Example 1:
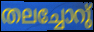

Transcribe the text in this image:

തലച്ചോറു്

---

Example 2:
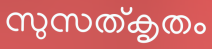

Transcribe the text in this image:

സുസത്കൃതം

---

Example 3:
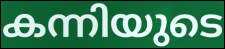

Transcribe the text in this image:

കന്നിയുടെ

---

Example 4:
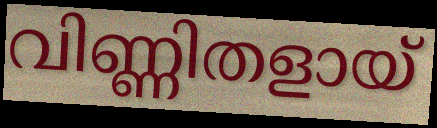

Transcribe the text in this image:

വിണ്ണിതളായ്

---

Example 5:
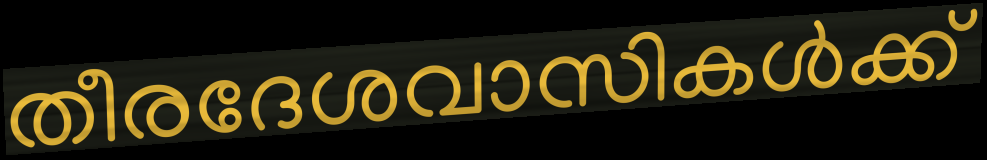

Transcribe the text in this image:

തീരദേശവാസികൾക്ക്